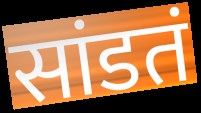
सांडतं